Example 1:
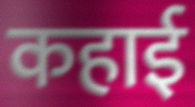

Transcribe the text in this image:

कहाई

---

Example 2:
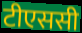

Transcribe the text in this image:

टीएससी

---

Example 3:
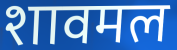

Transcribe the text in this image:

शावमल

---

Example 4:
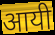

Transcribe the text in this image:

आयी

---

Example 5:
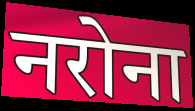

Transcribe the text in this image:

नरोना